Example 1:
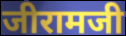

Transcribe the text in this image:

जीरामजी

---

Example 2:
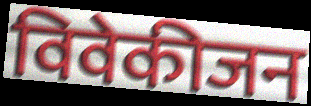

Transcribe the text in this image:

विवेकीजन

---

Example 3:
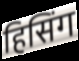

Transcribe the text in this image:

हिसिंग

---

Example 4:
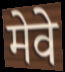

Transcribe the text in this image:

मेवे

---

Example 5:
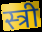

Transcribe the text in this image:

स्‍त्री